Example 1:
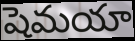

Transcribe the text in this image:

షెమయా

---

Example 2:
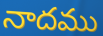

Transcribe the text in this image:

నాదము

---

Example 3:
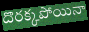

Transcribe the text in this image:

దొరక్కపోయినా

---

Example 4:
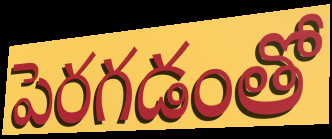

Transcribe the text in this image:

పెరగడంతో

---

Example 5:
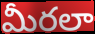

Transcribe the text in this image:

మీరలా